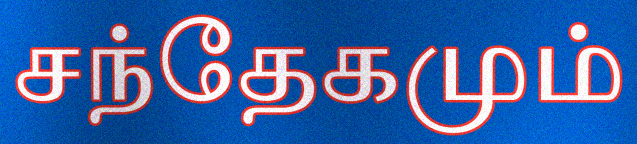
சந்தேகமும்